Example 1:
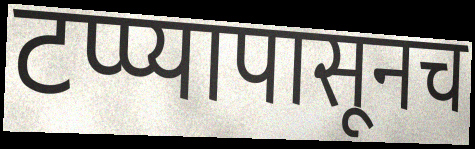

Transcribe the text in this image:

टप्प्यापासूनच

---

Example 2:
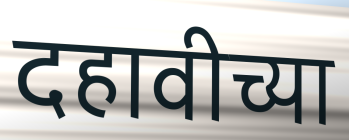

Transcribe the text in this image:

दहावीच्या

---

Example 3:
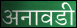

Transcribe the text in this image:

अनावडी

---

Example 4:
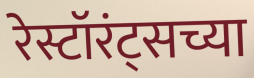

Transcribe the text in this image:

रेस्टॉरंट्सच्या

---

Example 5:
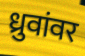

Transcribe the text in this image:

ध्रुवांवर